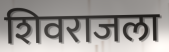
शिवराजला